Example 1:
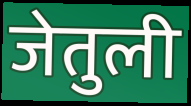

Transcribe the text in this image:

जेतुली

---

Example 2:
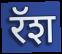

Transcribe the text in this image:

रॅश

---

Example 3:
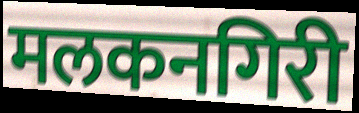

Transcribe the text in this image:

मलकनगिरी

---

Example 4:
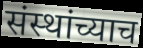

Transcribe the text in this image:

संस्थांच्याच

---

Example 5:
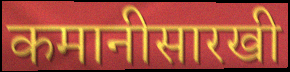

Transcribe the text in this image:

कमानीसारखी